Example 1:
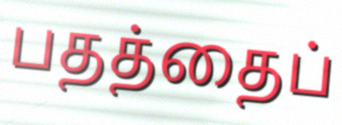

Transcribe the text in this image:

பதத்தைப்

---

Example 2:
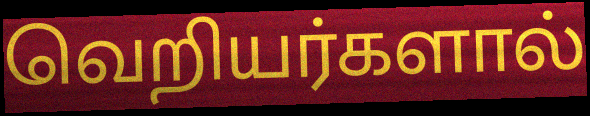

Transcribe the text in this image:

வெறியர்களால்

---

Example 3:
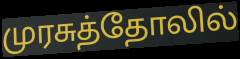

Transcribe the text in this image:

முரசுத்தோலில்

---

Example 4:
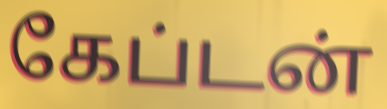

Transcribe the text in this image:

கேப்டன்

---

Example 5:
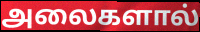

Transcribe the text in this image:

அலைகளால்